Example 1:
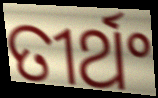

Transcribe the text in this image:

ତୀର୍ଥଂ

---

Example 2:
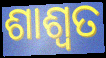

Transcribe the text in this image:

ଶାଶ୍ୱତ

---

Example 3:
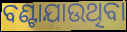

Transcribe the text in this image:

ବଣ୍ଟାଯାଉଥିବା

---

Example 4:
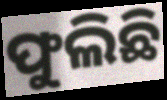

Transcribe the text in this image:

ଫୁଲିଛି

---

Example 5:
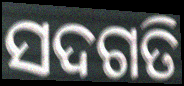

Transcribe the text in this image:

ସଦଗତି